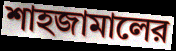
শাহজামালের